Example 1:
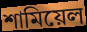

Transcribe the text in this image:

শামিয়েল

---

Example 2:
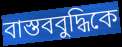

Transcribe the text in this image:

বাস্তববুদ্ধিকে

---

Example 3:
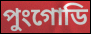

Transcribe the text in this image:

পুংগোডি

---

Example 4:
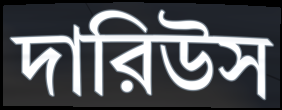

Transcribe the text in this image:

দারিউস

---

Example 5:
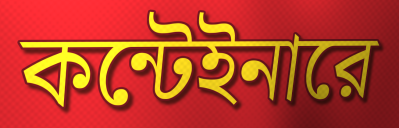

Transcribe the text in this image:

কন্টেইনারে